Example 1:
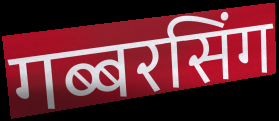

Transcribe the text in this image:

गब्बरसिंग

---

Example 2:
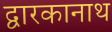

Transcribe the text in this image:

द्वारकानाथ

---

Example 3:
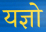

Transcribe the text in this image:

यज्ञो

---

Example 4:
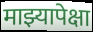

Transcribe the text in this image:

माझ्यापेक्षा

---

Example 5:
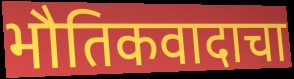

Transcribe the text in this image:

भौतिकवादाचा